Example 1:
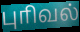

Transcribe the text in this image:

புரிவல்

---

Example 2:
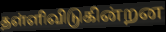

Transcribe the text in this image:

தள்ளிவிடுகின்றன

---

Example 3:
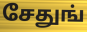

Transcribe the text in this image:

சேதுங்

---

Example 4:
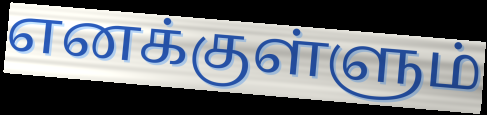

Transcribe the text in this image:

எனக்குள்ளும்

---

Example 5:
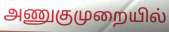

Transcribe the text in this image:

அணுகுமுறையில்